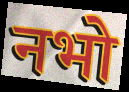
नभो